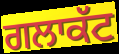
ਗਲਾਕੱਟ